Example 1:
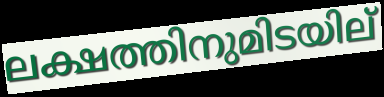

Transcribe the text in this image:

ലക്ഷത്തിനുമിടയില്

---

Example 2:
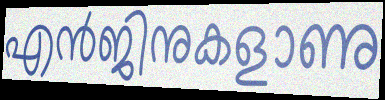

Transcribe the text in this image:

എൻജിനുകളാണു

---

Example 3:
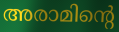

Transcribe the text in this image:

അരാമിന്റെ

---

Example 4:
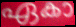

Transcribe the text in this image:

ഏകാ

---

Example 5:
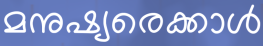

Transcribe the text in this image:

മനുഷ്യരെക്കാൾ